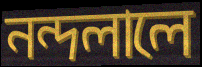
নন্দলালে